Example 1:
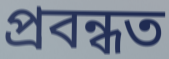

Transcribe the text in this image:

প্ৰবন্ধত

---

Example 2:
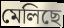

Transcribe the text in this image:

মেলিছে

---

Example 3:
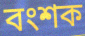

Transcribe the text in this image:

বংশক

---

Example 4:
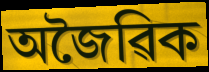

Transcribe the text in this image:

অজৈৱিক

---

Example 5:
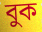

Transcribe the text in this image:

বুক